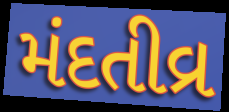
મંદતીવ્ર